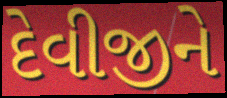
દેવીજીને